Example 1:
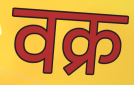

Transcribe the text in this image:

वक्र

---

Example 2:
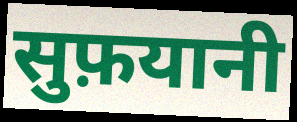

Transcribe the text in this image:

सुफ़यानी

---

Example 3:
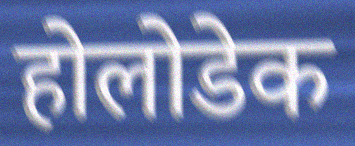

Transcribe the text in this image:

होलोडेक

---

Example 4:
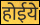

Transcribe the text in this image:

होईये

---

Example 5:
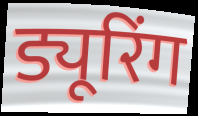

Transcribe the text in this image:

ड्यूरिंग